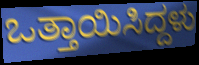
ಒತ್ತಾಯಿಸಿದ್ದಳು